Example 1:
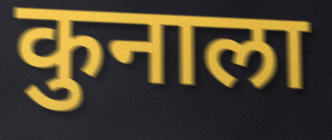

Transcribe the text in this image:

कुनाला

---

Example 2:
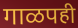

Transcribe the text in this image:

गाळपही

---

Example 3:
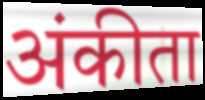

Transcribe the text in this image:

अंकीता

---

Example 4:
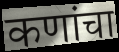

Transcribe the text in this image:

कणांचा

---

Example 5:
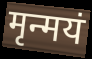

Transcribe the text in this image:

मृन्मयं